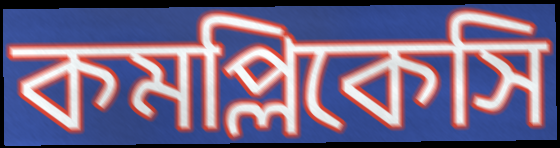
কমপ্লিকেসি